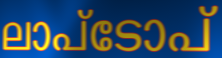
ലാപ്ടോപ്